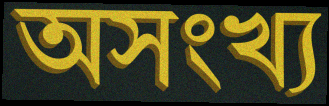
অসংখ্য